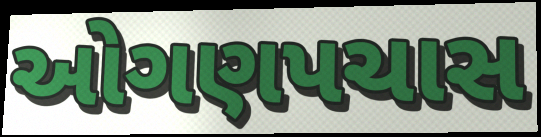
ઓગણપચાસ